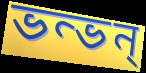
ভন্ভন্